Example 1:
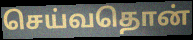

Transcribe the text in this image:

செய்வதொன்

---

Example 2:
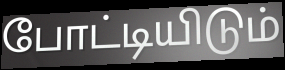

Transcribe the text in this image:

போட்டியிடும்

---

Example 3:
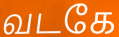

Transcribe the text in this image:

வடகே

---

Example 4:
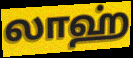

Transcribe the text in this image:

லாஹ்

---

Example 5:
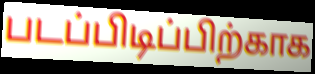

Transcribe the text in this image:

படப்பிடிப்பிற்காக